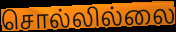
சொல்லில்லை